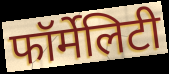
फॉर्मेलिटी